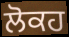
ਲੋਕਹ